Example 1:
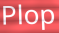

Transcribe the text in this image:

Plop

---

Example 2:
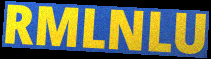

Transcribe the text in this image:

RMLNLU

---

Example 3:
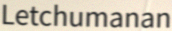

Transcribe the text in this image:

Letchumanan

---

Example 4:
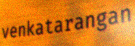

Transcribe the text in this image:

venkatarangan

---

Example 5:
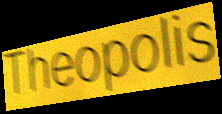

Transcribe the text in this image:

Theopolis